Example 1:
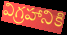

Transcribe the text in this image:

విగ్రహానికి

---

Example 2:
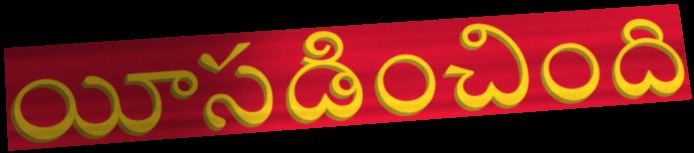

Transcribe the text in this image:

యీసడించింది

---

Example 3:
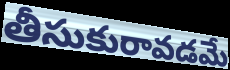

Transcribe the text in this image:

తీసుకురావడమే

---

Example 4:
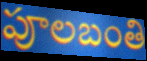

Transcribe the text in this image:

పూలబంతి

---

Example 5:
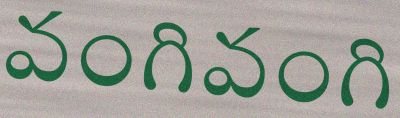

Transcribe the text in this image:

వంగివంగి